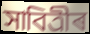
সাবিত্ৰীৰ